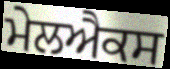
ਮੇਲਐਕਸ